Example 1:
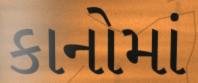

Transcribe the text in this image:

કાનોમાં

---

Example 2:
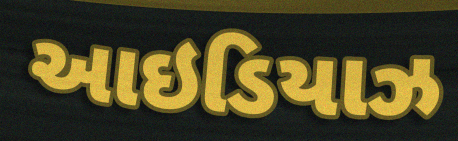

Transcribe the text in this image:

આઇડિયાઝ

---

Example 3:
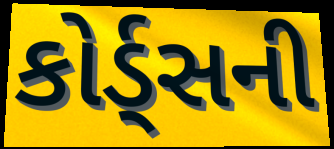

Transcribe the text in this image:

કોર્ડ્સની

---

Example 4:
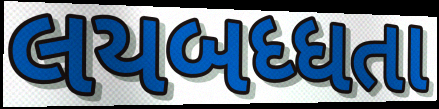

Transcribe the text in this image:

લયબધ્ધતા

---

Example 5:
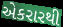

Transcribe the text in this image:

એકરારથી